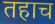
तहाच